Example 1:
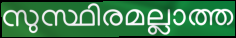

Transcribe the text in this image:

സുസ്ഥിരമല്ലാത്ത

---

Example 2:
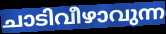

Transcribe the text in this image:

ചാടിവീഴാവുന്ന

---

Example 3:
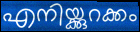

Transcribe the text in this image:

എനിയ്ക്കുറക്കം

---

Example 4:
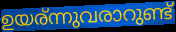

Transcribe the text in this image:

ഉയര്ന്നുവരാറുണ്ട്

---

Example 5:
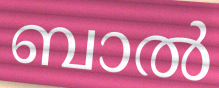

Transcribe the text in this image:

ബാൽ